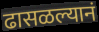
ढासळल्यानं